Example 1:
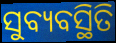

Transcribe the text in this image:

ସୁବ୍ୟବସ୍ଥିତି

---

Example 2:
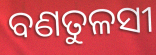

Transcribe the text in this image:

ବଣତୁଳସୀ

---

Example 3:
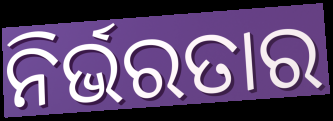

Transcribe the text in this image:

ନିର୍ଭରତାର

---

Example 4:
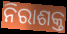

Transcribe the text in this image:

ନିରାଶକ୍ତ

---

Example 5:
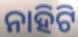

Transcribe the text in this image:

ନାହିଟି